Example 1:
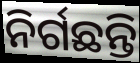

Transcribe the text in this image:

ନିର୍ଗଛନ୍ତି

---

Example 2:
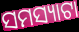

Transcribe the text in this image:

ସମସ୍ୟାଟା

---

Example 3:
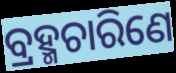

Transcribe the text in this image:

ବ୍ରହ୍ମଚାରିଣେ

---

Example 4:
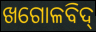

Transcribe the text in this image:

ଖଗୋଳବିଦ୍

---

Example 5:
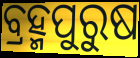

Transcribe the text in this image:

ବ୍ରହ୍ମପୁରୁଷ